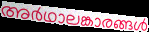
അർഥാലങ്കാരങ്ങൾ